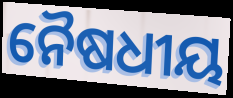
ନୈଷଧୀୟ